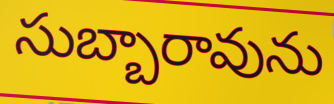
సుబ్బారావును